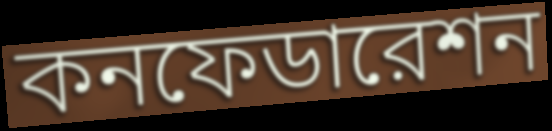
কনফেডারেশন